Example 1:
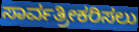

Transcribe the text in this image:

ಸಾರ್ವತ್ರೀಕರಿಸಲು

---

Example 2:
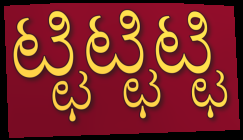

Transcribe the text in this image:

ಟ್ಟಿಟ್ಟಿಟ್ಟಿ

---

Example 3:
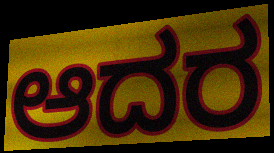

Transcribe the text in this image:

ಆದರ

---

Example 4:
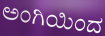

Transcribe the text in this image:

ಅಂಗಿಯಿಂದ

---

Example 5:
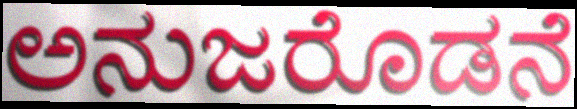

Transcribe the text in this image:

ಅನುಜರೊಡನೆ